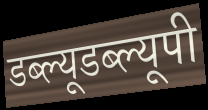
डब्ल्यूडब्ल्यूपी